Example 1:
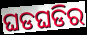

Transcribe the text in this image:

ଘଡଘଡିର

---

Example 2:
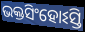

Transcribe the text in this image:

ଭକ୍ତସିଂହୋଽସ୍ତି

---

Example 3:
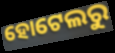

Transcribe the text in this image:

ହୋଟେଲରୁ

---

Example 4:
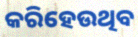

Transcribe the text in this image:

କରିହେଉଥିବ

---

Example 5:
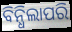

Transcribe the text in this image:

ବିନ୍ଧିଲାପରି